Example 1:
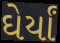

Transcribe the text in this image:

ઘેર્યાં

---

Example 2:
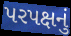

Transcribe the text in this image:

પરપક્ષનું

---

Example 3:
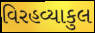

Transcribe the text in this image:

વિરહવ્યાકુલ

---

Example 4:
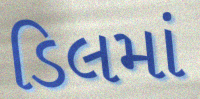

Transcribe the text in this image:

ડિલમાં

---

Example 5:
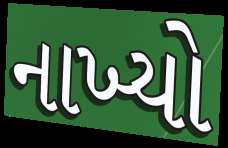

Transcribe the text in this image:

નાખ્યો